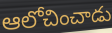
ఆలోచించాడు